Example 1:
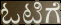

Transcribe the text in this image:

ಓಟಿಗೆ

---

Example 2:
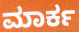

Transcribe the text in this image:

ಮಾರ್ಕ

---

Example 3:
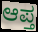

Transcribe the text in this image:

ಆಪ್ತ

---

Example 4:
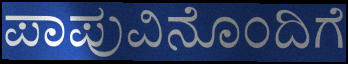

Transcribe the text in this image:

ಪಾಪುವಿನೊಂದಿಗೆ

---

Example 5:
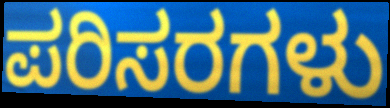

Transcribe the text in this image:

ಪರಿಸರಗಳು